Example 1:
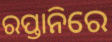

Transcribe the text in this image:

ରପ୍ତାନିରେ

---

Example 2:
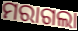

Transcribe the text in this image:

ମରାଗଲା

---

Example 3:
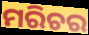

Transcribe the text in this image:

ମରିଚର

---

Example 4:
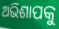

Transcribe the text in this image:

ଅଭିଶାପକୁ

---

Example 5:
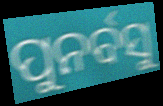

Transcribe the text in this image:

ପୁନର୍ବସୁ